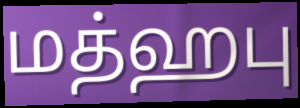
மத்ஹபு